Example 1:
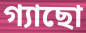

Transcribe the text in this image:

গ্যাছো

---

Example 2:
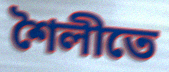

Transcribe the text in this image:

শৈলীতে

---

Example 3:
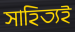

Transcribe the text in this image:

সাহিত্যই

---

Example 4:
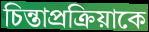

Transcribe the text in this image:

চিন্তাপ্রক্রিয়াকে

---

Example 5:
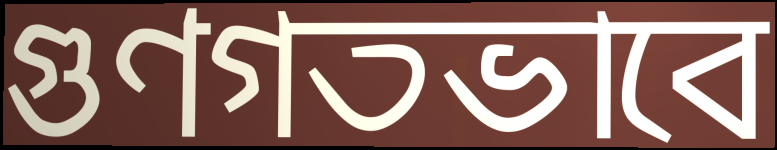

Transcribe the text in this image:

গুণগতভাবে